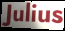
Julius